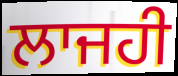
ਲਾਜਹੀ